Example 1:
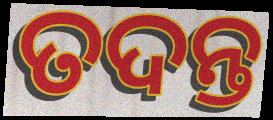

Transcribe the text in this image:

ତଦନ୍ତ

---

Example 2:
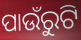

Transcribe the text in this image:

ପାଉଁରୁଟି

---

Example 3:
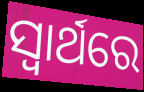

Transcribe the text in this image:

ସ୍ଵାର୍ଥରେ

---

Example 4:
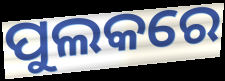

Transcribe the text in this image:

ପୁଲକରେ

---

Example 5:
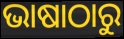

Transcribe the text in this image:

ଭାଷାଠାରୁ